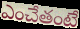
ఎంచేతంటే